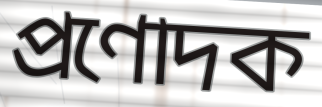
প্রণোদক